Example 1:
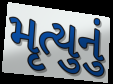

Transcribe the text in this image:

મૃત્યુનું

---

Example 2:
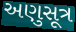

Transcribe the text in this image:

અણુસૂત્ર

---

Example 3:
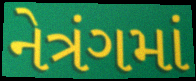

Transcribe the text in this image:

નેત્રંગમાં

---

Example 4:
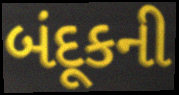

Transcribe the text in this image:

બંદૂકની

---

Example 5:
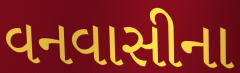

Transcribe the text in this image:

વનવાસીના